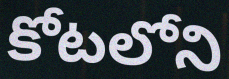
కోటలోని